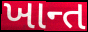
ખાન્ત